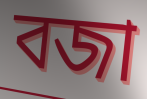
বজা